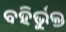
ବହିର୍ଭୁକ୍ତ